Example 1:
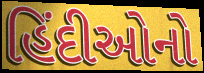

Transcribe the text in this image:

હિંદીઓનો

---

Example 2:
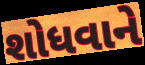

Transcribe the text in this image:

શોધવાને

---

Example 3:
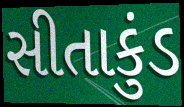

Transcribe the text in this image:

સીતાકુંડ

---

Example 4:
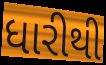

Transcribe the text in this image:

ધારીથી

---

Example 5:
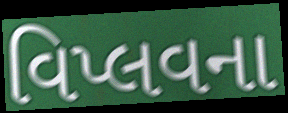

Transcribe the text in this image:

વિપ્લવના